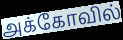
அக்கோவில்